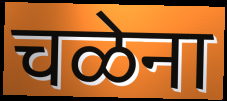
चळेना